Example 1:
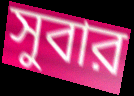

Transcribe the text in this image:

সুবার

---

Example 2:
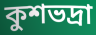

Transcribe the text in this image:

কুশভদ্রা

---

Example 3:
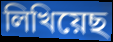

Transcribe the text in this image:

লিখিয়েছ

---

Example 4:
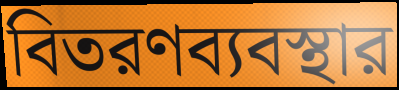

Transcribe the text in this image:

বিতরণব্যবস্থার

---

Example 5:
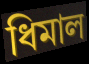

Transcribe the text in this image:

ধিমাল